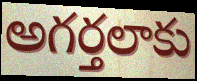
అగర్తలాకు